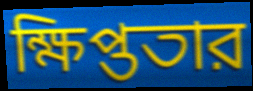
ক্ষিপ্ততার